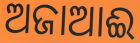
ଅଜାଆଈ